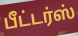
பீட்டர்ஸ்